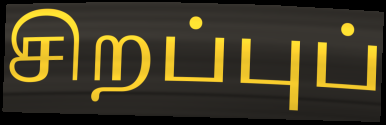
சிறப்புப்